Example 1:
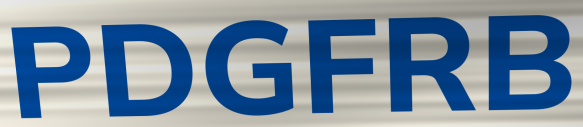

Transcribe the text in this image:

PDGFRB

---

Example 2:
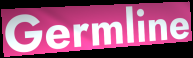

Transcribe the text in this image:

Germline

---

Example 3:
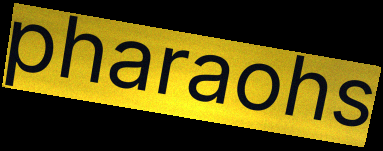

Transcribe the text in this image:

pharaohs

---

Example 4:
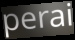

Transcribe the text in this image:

perai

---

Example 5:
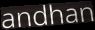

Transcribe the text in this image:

andhan